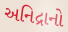
અનિદ્રાનો